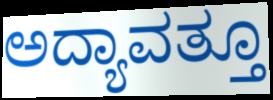
ಅದ್ಯಾವತ್ತೂ